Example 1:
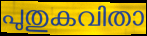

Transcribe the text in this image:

പുതുകവിതാ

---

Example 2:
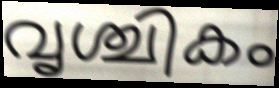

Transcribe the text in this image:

വൃശ്ചികം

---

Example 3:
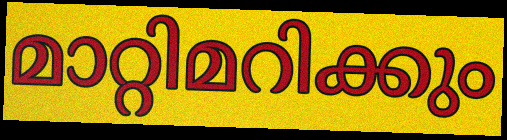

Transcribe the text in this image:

മാറ്റിമറിക്കും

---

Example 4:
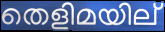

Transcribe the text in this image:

തെളിമയില്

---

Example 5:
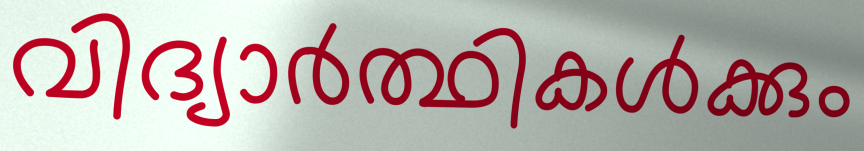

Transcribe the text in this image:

വിദ്യാർത്ഥികൾക്കും